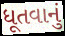
ધૂતવાનું